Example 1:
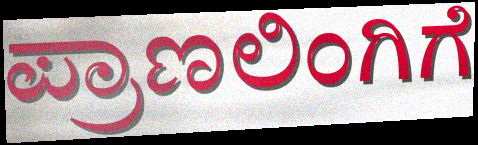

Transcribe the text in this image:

ಪ್ರಾಣಲಿಂಗಿಗೆ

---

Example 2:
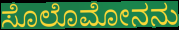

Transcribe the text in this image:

ಸೊಲೊಮೋನನು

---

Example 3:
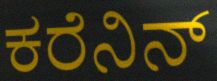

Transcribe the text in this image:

ಕರೆನಿನ್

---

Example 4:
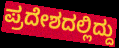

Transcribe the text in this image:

ಪ್ರದೇಶದಲ್ಲಿದ್ದು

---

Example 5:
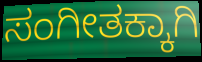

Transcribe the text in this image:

ಸಂಗೀತಕ್ಕಾಗಿ